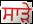
ਸਾੜੇ